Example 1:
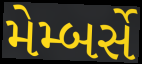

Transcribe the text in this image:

મેમ્બર્સે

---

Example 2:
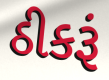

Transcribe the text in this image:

ઠીકરૂં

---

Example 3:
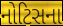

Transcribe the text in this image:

નોટિસના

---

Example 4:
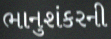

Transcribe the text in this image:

ભાનુશંકરની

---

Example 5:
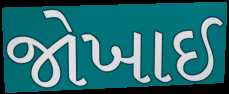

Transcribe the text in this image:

જોખાઈ